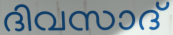
ദിവസാദ്